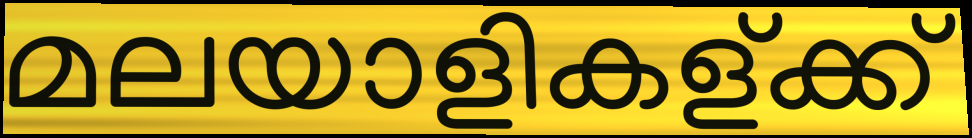
മലയാളികള്ക്ക്